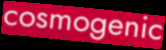
cosmogenic